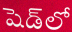
షెడ్‌లో